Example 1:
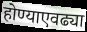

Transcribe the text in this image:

होण्याएवढ्या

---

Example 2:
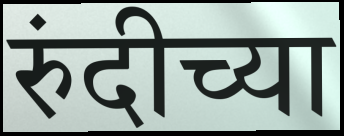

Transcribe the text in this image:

रुंदीच्या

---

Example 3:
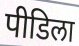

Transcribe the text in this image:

पीडिला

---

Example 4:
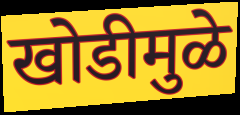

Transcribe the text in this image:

खोडीमुळे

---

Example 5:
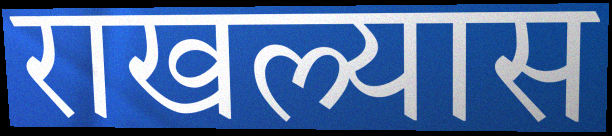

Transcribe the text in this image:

राखल्यास